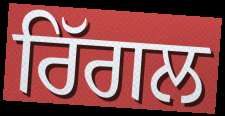
ਰਿੱਗਲ